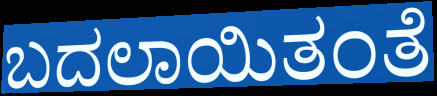
ಬದಲಾಯಿತಂತೆ